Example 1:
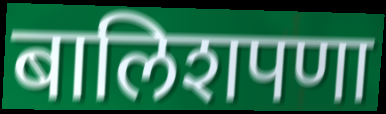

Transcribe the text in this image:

बालिशपणा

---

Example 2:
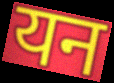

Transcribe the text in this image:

यन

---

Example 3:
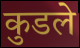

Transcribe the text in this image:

कुडले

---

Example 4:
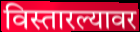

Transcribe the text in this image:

विस्तारल्यावर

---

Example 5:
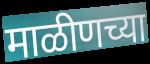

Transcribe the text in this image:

माळीणच्या